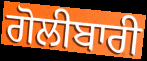
ਗੋਲੀਬਾਰੀ